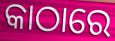
କାଠାରେ